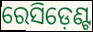
ରେସିଡ଼େଣ୍ଟ